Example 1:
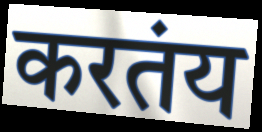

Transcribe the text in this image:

करतंय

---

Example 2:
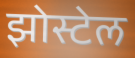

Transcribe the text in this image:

झोस्टेल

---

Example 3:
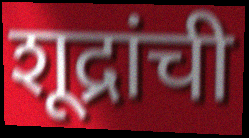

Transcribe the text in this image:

शूद्रांची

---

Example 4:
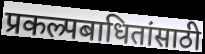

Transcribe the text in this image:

प्रकल्पबाधितांसाठी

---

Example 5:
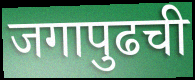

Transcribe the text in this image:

जगापुढची